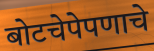
बोटचेपेपणाचे